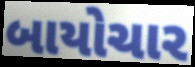
બાયોચાર